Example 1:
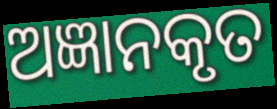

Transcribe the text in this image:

ଅଜ୍ଞାନକୃତ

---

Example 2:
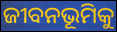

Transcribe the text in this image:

ଜୀବନଭୂମିକୁ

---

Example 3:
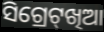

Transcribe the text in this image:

ସିଗ୍ରେଟ୍‌ଖିଆ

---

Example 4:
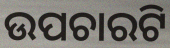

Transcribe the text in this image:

ଉପଚାରଟି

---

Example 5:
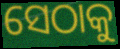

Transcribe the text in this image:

ସେଠାକୁ